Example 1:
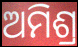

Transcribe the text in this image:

ଅମିଶ୍ର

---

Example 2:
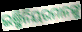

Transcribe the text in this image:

ଇଞ୍ଜିନିୟରମାନଙ୍କୁ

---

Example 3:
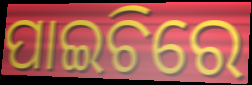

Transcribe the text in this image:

ପାଇଚିରେ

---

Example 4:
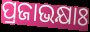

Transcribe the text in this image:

ପ୍ରଜାଭକ୍ଷାଃ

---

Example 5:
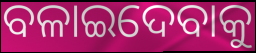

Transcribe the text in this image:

ବଳାଇଦେବାକୁ